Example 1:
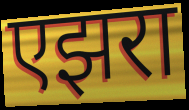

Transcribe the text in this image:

एझरा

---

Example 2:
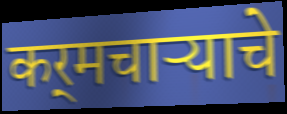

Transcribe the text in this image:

कर्मचाऱ्याचे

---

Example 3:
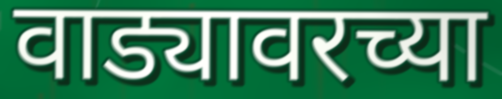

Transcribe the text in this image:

वाड्यावरच्या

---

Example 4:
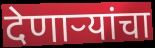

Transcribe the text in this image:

देणाऱ्यांचा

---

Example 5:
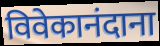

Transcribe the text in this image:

विवेकानंदाना